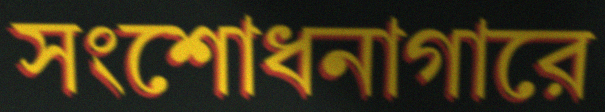
সংশোধনাগারে